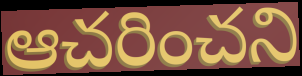
ఆచరించని